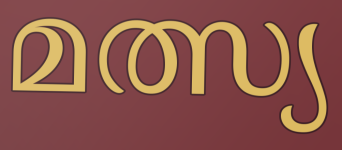
മത്സ്യ